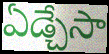
ఏడ్చేసా